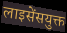
लाइसेंसयुक्त